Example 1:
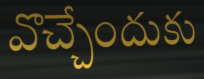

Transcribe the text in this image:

వొచ్చేందుకు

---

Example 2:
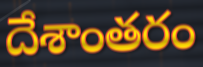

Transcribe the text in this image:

దేశాంతరం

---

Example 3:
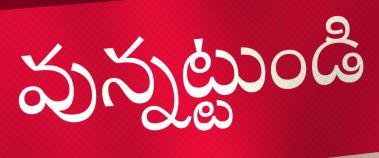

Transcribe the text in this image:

వున్నట్టుండి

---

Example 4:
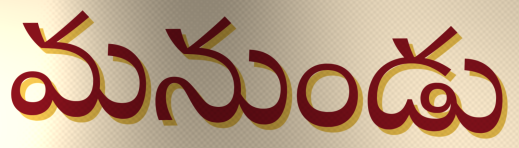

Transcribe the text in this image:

మనుండు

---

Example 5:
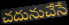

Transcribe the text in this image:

చదునుచేసే